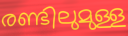
രണ്ടിലുമുള്ള